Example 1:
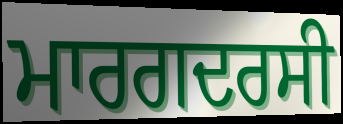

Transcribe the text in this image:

ਮਾਰਗਦਰਸੀ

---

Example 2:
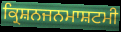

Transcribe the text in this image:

ਕ੍ਰਿਸ਼ਨਜਨਮਾਸ਼ਟਮੀ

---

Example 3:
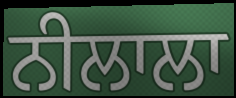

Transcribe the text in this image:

ਨੀਲਾਲਾ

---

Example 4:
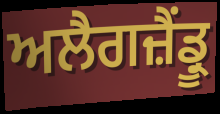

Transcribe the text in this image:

ਅਲੈਗਜ਼ੈਂਡ੍ਰੂ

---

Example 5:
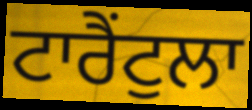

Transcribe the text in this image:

ਟਾਰੈਂਟੁਲਾ